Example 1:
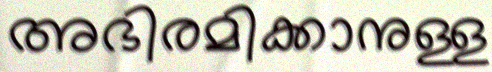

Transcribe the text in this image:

അഭിരമിക്കാനുള്ള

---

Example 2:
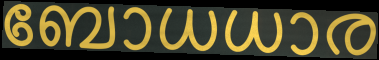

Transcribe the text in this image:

ബോധധാര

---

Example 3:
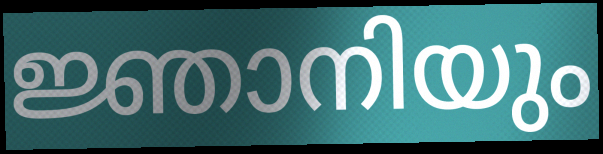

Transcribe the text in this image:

ജ്ഞാനിയും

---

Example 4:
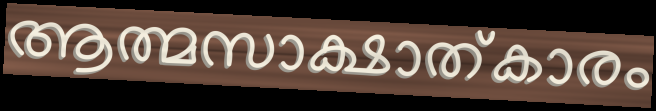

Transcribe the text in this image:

ആത്മസാക്ഷാത്കാരം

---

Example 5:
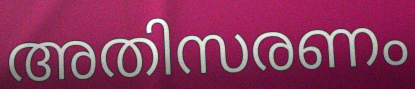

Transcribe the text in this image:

അതിസരണം